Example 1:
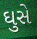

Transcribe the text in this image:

ઘુસે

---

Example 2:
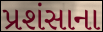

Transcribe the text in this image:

પ્રશંસાના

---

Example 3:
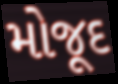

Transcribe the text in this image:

મોજૂદ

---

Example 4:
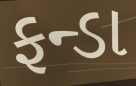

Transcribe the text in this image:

ફન્ડા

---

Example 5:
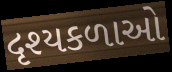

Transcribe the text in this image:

દૃશ્યકળાઓ